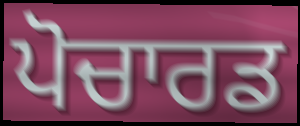
ਪੋਚਾਰਡ